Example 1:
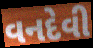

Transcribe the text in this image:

વનદેવી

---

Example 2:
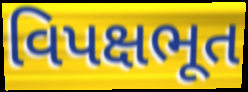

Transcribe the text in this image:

વિપક્ષભૂત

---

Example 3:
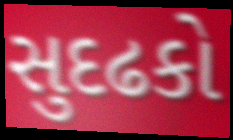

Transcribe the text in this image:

સુદઢકો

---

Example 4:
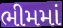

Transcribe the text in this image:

ભીમમાં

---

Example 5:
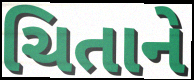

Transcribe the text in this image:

ચિતાને